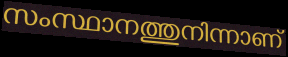
സംസ്ഥാനത്തുനിന്നാണ്